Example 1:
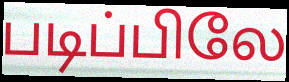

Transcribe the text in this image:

படிப்பிலே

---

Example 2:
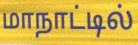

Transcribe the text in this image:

மாநாட்டில்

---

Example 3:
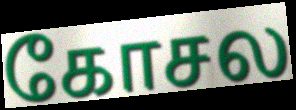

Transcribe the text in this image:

கோசல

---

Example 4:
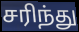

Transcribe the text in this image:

சரிந்து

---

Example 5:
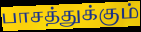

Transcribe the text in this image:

பாசத்துக்கும்